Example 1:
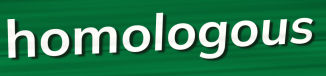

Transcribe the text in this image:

homologous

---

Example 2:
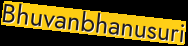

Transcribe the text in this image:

Bhuvanbhanusuri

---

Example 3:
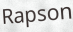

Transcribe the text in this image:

Rapson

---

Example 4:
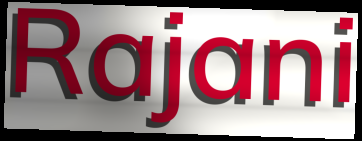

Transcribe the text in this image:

Rajani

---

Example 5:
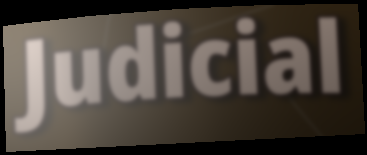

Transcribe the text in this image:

Judicial